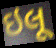
ઇલૂ